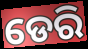
ଡେରି